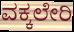
ವಕ್ಕಲೇರಿ